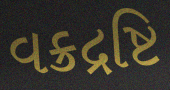
વક્રદ્રષ્ટિ